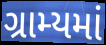
ગ્રામ્યમાં